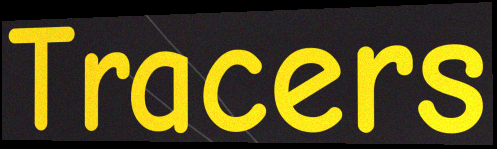
Tracers